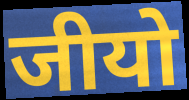
जीयो